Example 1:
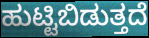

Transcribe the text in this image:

ಹುಟ್ಟಿಬಿಡುತ್ತದೆ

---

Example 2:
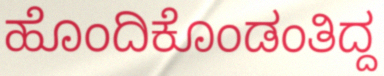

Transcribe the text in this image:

ಹೊಂದಿಕೊಂಡಂತಿದ್ದ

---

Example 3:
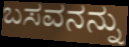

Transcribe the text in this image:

ಬಸವನನ್ನು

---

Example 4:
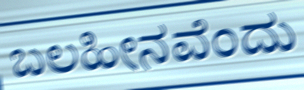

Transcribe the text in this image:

ಬಲಹೀನವೆಂದು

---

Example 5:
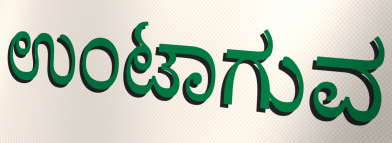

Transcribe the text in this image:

ಉಂಟಾಗುವ